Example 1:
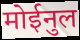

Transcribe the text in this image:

मोईनुल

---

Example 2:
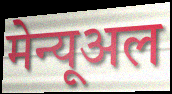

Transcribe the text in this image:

मेन्यूअल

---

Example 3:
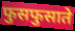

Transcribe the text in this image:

फुसफुसाते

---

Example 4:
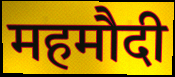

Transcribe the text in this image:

महमौदी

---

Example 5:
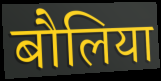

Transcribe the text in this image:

बौलिया